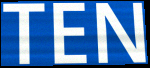
TEN